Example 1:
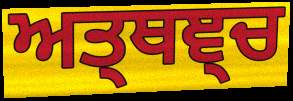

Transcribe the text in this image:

ਅਤ੍ਥਞ੍ਚ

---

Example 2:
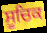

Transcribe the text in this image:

ਸੂਚਿਕ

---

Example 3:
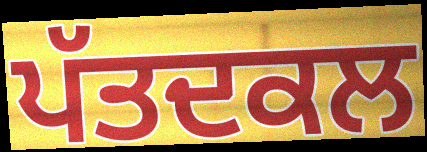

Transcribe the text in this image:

ਪੱਤਦਕਲ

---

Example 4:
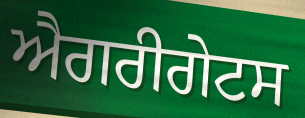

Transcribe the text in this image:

ਐਗਰੀਗੇਟਸ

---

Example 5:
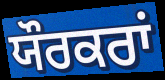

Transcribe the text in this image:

ਯੌਰਕਰਾਂ